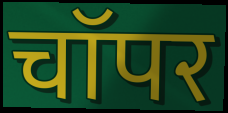
चॉपर